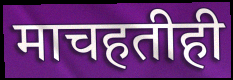
माचहतीही